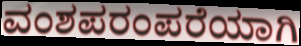
ವಂಶಪರಂಪರೆಯಾಗಿ